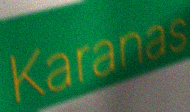
Karanas